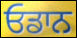
ਓਡਾਨ